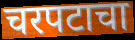
चरपटाचा